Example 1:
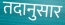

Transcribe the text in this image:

तदानुसार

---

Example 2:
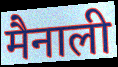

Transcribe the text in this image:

मैनाली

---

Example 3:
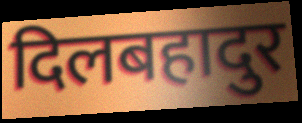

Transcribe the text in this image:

दिलबहादुर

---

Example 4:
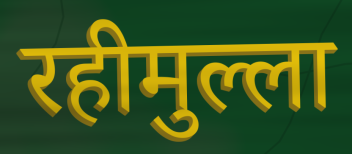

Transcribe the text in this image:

रहीमुल्ला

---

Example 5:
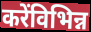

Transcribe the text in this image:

करेंविभिन्न